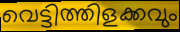
വെട്ടിത്തിളക്കവും